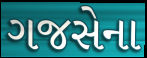
ગજસેના